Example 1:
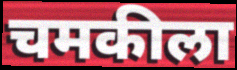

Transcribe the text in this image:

चमकीला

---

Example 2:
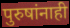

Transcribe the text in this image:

पुरुषांनाही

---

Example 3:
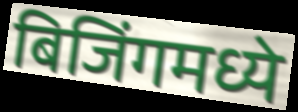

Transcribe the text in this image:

बिजिंगमध्ये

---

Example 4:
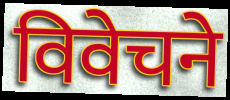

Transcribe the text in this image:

विवेचने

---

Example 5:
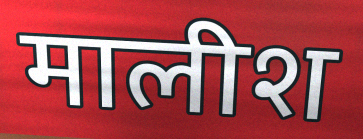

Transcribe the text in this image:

मालीश